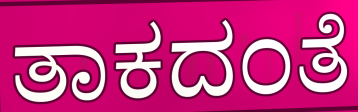
ತಾಕದಂತೆ